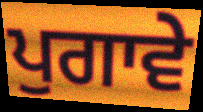
ਪੁਗਾਵੇ